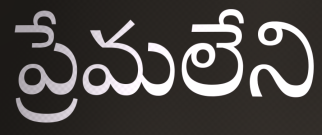
ప్రేమలేని